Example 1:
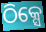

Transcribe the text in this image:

ଠିକ୍ସେ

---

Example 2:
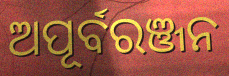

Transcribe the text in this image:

ଅପୂର୍ବରଞ୍ଜନ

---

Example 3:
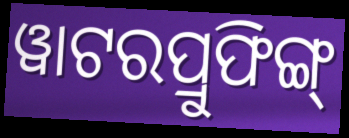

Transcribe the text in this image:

ୱାଟରପ୍ରୁଫିଙ୍ଗ୍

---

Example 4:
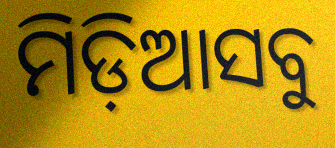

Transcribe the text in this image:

ମିଡ଼ିଆସବୁ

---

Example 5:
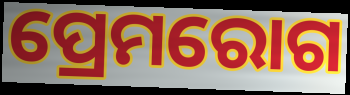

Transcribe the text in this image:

ପ୍ରେମରୋଗ